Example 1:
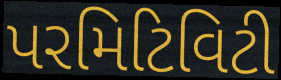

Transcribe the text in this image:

પરમિટિવિટી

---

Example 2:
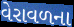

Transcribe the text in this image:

વેરાવળના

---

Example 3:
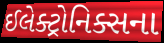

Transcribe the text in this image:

ઈલેક્ટ્રોનિક્સના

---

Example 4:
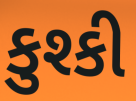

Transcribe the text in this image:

કુશ્કી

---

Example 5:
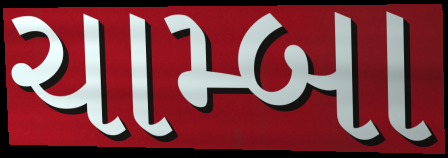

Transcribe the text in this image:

ચામ્બા